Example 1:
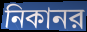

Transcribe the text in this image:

নিকানর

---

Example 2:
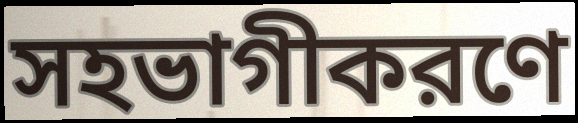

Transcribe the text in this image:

সহভাগীকরণে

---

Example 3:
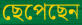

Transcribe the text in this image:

ছেপেছেন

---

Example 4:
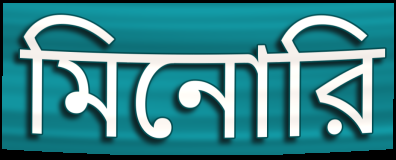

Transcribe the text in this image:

মিনোরি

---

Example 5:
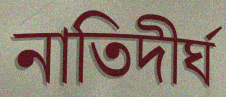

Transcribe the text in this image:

নাতিদীর্ঘ